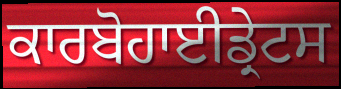
ਕਾਰਬੋਹਾਈਡ੍ਰੇਟਸ